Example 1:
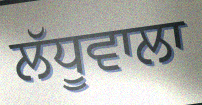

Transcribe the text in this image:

ਲੱਧੂਵਾਲਾ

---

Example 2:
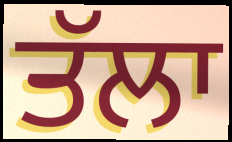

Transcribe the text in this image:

ਤੱਲਾ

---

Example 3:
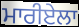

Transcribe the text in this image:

ਮਾਰੀਏਲਾ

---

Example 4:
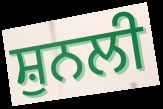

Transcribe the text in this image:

ਸ਼ੁਨਲੀ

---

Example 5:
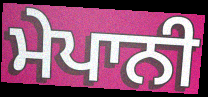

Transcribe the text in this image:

ਮੇਪਾਨੀ